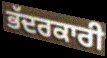
ਭੱਦਰਕਾਰੀ